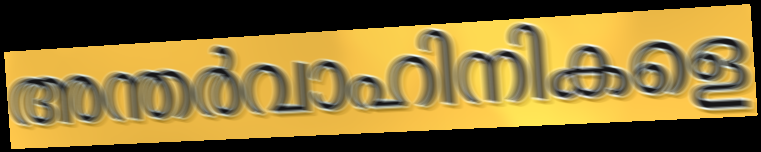
അന്തർവാഹിനികളെ